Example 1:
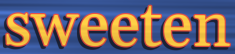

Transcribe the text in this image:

sweeten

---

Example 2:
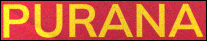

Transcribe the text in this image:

PURANA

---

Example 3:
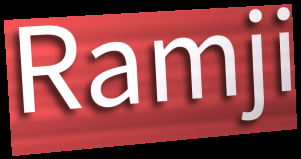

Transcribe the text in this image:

Ramji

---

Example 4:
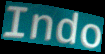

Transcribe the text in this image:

Indo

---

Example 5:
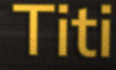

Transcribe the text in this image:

Titi